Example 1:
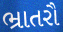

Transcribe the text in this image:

ભ્રાતરૌ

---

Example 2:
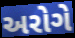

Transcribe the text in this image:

અરોગે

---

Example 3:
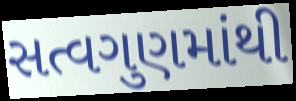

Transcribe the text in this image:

સત્વગુણમાંથી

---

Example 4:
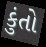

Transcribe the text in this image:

કુંતો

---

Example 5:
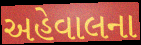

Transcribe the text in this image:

અહેવાલના